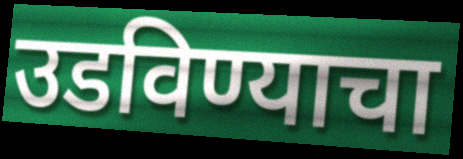
उडविण्याचा